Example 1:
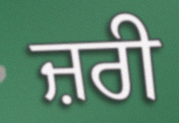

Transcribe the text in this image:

ਜ਼ਰੀ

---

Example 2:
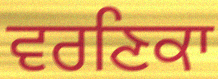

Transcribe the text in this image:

ਵਰਣਿਕਾ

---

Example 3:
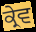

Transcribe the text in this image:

ਕ੍ਰੇਵ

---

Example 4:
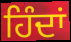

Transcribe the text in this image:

ਹਿੰਦਾਂ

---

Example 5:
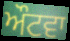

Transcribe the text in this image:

ਔਟਵਾ